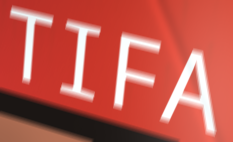
TIFA